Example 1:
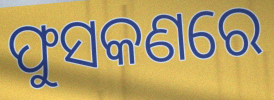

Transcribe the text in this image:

ଫୁସକଣରେ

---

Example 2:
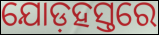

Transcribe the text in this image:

ଯୋଡ଼ହସ୍ତରେ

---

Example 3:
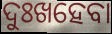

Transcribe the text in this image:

ଦୁଃଖହେବା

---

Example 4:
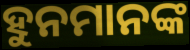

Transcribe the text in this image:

ହୁନମାନଙ୍କ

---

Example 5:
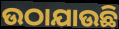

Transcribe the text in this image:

ଉଠାଯାଉଛି